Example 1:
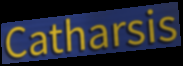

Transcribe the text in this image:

Catharsis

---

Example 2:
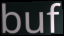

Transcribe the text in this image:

buf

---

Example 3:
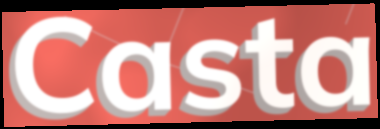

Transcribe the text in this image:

Casta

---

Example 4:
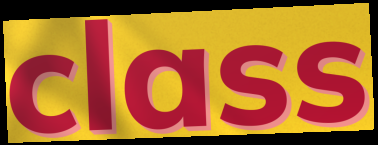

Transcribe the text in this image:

class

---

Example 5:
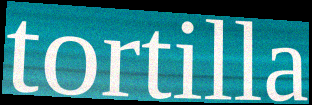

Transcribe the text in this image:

tortilla